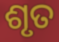
ଶୃତ